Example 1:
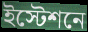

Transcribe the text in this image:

ইস্টেশনে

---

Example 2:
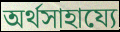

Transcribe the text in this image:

অর্থসাহায্যে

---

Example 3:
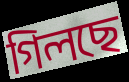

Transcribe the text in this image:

গিলছে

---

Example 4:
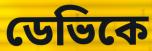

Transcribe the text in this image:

ডেভিকে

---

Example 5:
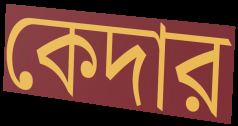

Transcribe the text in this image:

কেদার